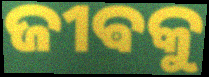
ଜୀଵକୁ